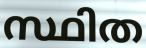
സ്ഥിത